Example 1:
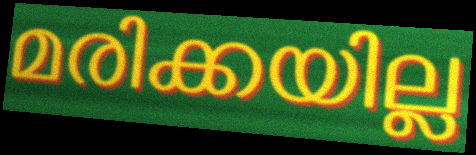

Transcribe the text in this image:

മരിക്കയില്ല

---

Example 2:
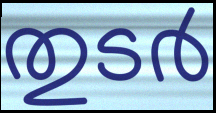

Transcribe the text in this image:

തുടർ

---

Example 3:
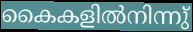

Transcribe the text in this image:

കൈകളിൽനിന്നു്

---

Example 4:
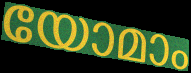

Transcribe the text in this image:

യോമാം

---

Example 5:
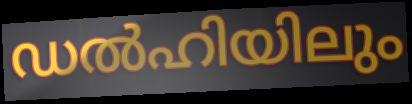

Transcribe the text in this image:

ഡൽഹിയിലും